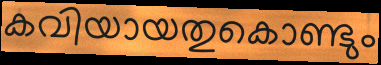
കവിയായതുകൊണ്ടും